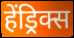
हेंड्रिक्स